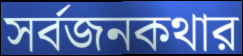
সর্বজনকথার